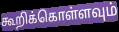
கூறிக்கொள்ளவும்